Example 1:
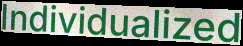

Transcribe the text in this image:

Individualized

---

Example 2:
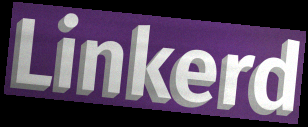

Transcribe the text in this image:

Linkerd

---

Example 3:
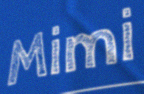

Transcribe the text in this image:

Mimi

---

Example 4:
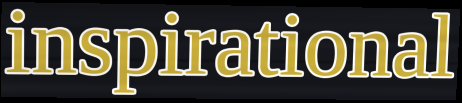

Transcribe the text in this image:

inspirational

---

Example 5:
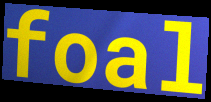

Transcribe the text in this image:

foal